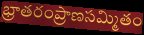
భ్రాతరంప్రాణసమ్మితం